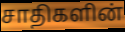
சாதிகளின்